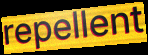
repellent